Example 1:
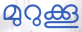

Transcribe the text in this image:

മുറുക്കൂ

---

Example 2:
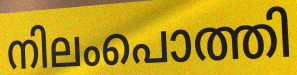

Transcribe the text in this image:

നിലംപൊത്തി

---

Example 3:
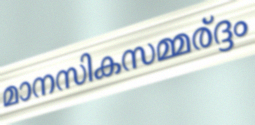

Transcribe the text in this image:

മാനസികസമ്മര്ദ്ദം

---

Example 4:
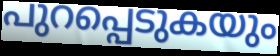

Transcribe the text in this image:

പുറപ്പെടുകയും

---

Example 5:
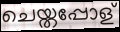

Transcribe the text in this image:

ചെയ്തപ്പോള്